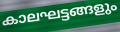
കാലഘട്ടങ്ങളും